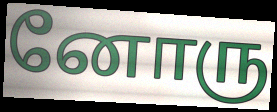
னோரு